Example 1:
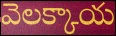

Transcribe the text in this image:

వెలక్కాయ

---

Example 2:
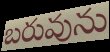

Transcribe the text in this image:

బరువును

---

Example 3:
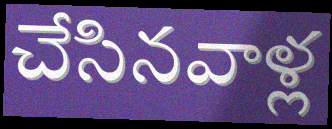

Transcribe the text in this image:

చేసినవాళ్ల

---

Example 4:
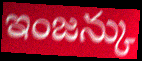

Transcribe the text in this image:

ఇంజన్కు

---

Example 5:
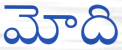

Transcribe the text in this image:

మోది